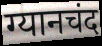
ग्यानचंद